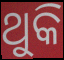
ଥୁକି